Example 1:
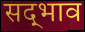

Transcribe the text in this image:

सद्‍भाव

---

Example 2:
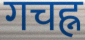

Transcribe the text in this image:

गचह्न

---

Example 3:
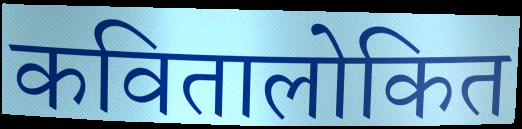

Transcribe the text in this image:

कवितालोकित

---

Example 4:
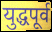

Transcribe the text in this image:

युद्धपूर्व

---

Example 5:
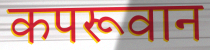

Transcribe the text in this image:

कपरूवान